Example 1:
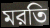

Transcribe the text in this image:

মরতি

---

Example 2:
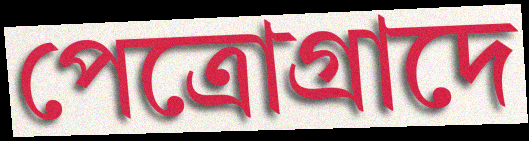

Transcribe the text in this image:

পেত্রোগ্রাদে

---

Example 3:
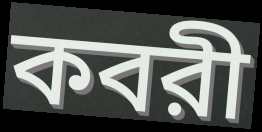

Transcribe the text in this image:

কবরী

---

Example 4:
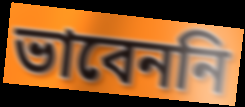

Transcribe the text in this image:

ভাবেননি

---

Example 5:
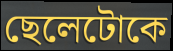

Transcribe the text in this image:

ছেলেটোকে